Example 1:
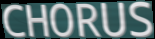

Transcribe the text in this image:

CHORUS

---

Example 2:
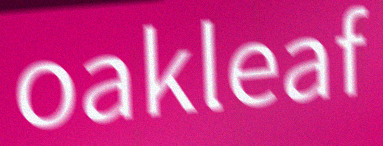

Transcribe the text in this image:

oakleaf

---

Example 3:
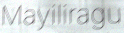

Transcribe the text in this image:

Mayiliragu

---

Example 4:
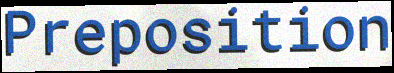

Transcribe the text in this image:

Preposition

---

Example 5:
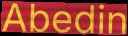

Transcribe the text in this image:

Abedin